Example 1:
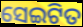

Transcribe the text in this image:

ସେଇଟିତ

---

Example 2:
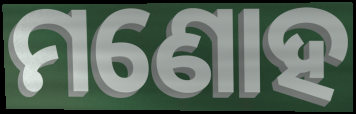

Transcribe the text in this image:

ମଣୋହ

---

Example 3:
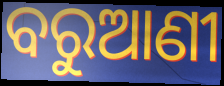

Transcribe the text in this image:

ବରୁଆଣୀ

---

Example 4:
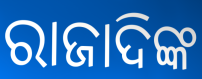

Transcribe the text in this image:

ରାଜାଦିଙ୍କ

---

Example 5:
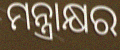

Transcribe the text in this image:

ମନ୍ତ୍ରାକ୍ଷର